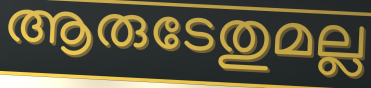
ആരുടേതുമല്ല